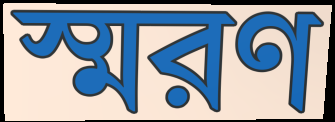
স্মরণ